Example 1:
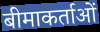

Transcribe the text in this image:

बीमाकर्ताओं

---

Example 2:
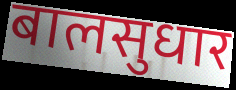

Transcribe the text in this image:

बालसुधार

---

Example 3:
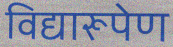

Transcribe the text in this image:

विद्यारूपेण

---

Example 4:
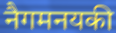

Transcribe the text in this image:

नैगमनयकी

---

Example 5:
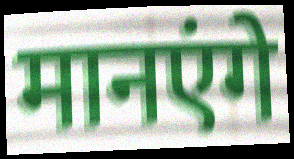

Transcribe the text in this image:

मानएंगे